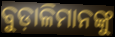
ବୁଡ଼ାଳିମାନଙ୍କୁ